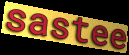
sastee